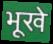
भूखे